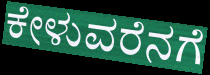
ಕೇಳುವರೆನಗೆ